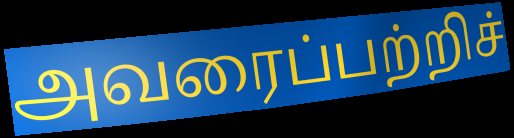
அவரைப்பற்றிச்